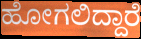
ಹೋಗಲಿದ್ದಾರೆ